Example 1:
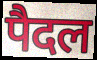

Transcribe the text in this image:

पैदल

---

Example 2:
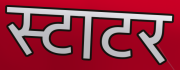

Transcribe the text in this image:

स्टाटर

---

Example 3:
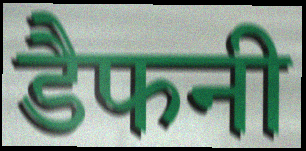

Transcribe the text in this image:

डैफनी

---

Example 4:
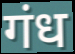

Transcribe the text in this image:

गंध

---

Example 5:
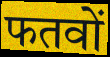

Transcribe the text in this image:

फतवों